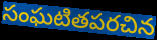
సంఘటితపరచిన